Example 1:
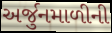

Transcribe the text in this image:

અર્જુનમાળીની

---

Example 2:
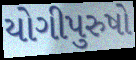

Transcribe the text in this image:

યોગીપુરુષો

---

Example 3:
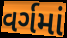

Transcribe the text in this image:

વર્ગમાં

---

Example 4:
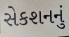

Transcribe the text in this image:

સેકશનનું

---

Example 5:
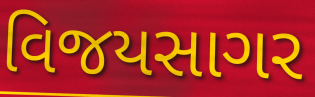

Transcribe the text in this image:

વિજયસાગર